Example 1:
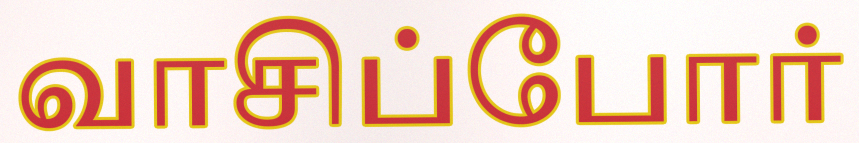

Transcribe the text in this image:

வாசிப்போர்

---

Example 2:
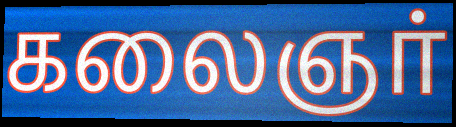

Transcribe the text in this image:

கலைஞர்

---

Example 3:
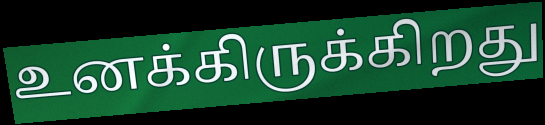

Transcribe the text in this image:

உனக்கிருக்கிறது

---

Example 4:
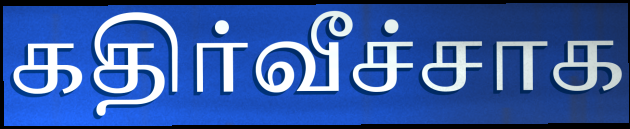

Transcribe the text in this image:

கதிர்வீச்சாக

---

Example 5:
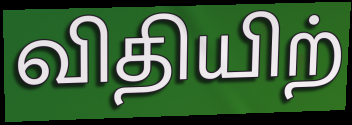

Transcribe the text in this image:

விதியிற்